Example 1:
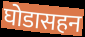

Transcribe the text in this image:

घोडासहन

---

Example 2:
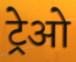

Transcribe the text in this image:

ट्रेओ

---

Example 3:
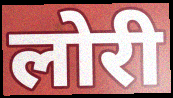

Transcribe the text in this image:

लोरी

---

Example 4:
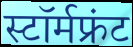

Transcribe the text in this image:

स्टॉर्मफ्रंट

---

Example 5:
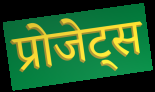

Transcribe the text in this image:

प्रोजेट्स